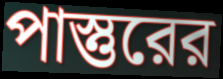
পাস্তুরের